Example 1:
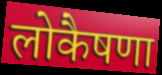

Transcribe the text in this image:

लोकैषणा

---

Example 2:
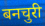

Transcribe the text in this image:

बनचुरी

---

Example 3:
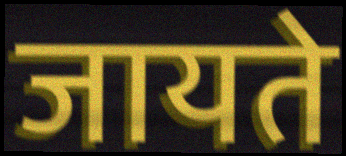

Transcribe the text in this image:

जायते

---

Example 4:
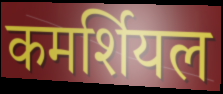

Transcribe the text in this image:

कमर्शियल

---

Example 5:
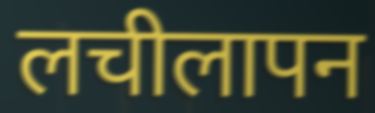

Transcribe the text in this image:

लचीलापन